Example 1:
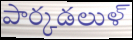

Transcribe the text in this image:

పార్కడలుళ్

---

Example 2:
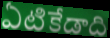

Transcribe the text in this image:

ఏటికేడాది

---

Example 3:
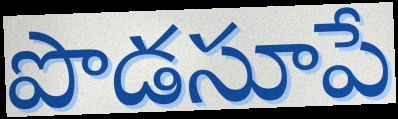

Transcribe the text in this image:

పొడసూపే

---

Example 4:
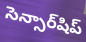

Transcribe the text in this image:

సెన్సార్‌షిప్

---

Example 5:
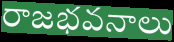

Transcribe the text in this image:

రాజభవనాలు